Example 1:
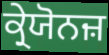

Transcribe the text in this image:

ਕ੍ਰੇਯੋਨਜ਼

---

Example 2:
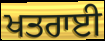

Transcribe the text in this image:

ਖਤਰਾਈ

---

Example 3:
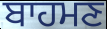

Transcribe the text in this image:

ਬਾਹਮਣ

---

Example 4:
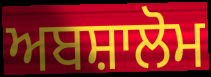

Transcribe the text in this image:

ਅਬਸ਼ਾਲੋਮ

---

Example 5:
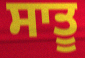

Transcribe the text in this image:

ਸਾਤੂ